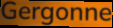
Gergonne